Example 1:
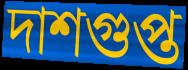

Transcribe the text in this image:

দাশগুপ্ত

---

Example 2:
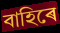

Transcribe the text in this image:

বাহিৰে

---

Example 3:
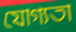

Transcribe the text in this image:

যোগ্যতা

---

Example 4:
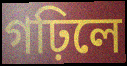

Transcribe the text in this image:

গঢ়িলে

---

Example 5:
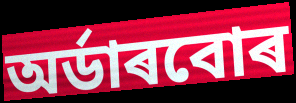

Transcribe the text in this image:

অৰ্ডাৰবোৰ